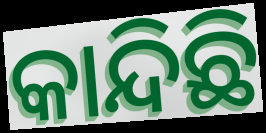
କାନ୍ଦିଛି